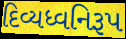
દિવ્યધ્વનિરૂપ